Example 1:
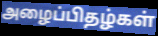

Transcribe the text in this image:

அழைப்பிதழ்கள்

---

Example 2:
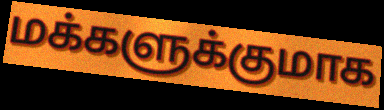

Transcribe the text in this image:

மக்களுக்குமாக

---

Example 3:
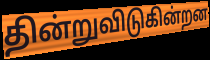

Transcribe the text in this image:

தின்றுவிடுகின்றன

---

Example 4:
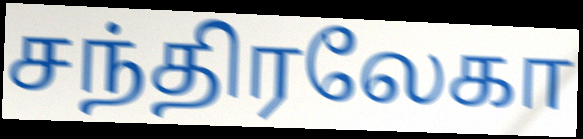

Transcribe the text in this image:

சந்திரலேகா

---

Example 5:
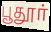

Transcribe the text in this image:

பூதூர்